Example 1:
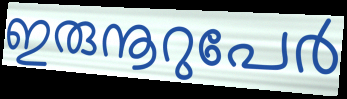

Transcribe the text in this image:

ഇരുനൂറുപേർ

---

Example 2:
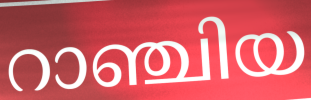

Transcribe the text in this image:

റാഞ്ചിയ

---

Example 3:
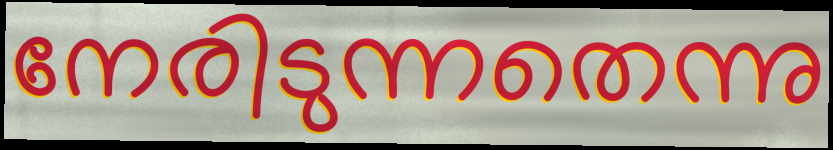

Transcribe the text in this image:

നേരിടുന്നതെന്നു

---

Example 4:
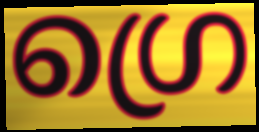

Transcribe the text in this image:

ഗ്രെ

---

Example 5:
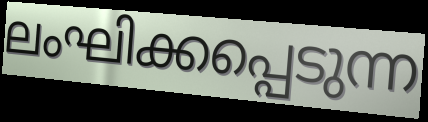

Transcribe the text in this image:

ലംഘിക്കപ്പെടുന്ന